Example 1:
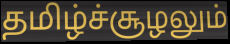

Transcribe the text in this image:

தமிழ்ச்சூழலும்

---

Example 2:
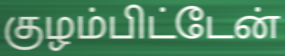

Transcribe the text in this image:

குழம்பிட்டேன்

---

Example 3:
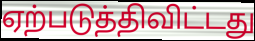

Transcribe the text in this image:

ஏற்படுத்திவிட்டது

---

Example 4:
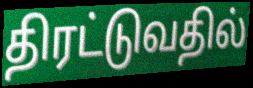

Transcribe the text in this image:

திரட்டுவதில்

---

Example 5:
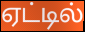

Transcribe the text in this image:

ஏட்டில்